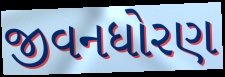
જીવનધોરણ